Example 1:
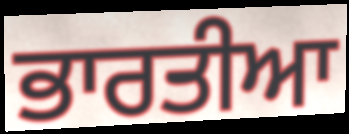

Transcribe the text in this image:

ਭਾਰਤੀਆ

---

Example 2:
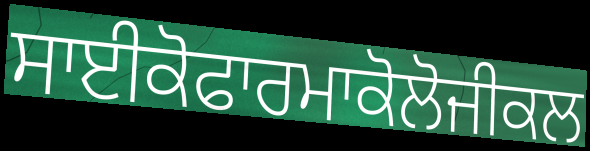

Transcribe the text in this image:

ਸਾਈਕੋਫਾਰਮਾਕੋਲੋਜੀਕਲ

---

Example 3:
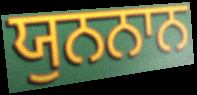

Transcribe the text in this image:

ਯੁਨਨਾਨ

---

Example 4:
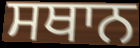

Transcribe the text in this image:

ਸਥਾਨ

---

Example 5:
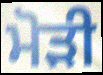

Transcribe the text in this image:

ਮੋੜੀ